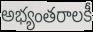
అభ్యంతరాలకీ